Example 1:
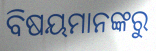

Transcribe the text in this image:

ବିଷୟମାନଙ୍କରୁ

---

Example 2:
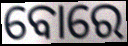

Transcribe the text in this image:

ବୋରେ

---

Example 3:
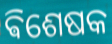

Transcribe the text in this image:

ଵିଶେଷକ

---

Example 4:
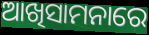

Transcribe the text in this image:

ଆଖିସାମନାରେ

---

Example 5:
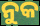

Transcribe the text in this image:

ନୁକ